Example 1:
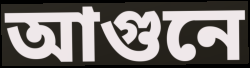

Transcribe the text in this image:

আগুনে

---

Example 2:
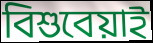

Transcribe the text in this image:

বিশুবেয়াই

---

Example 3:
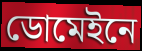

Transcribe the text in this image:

ডোমেইনে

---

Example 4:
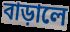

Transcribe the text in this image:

বাড়ালে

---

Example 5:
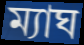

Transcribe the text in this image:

ম্যাঘ